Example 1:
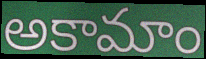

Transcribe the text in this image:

అకామాం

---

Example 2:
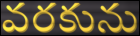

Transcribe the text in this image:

వరకును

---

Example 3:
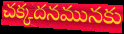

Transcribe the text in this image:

చక్కదనమునకు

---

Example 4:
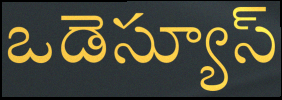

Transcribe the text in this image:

ఒడెస్యూస్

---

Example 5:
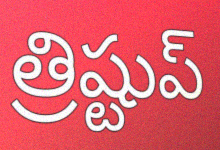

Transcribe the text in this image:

త్రిష్టుప్